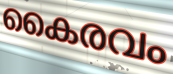
കൈരവം